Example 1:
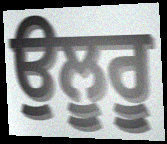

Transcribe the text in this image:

ਉਲੂਰੂ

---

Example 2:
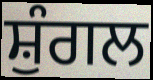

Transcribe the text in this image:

ਸ਼ੁੰਗਲ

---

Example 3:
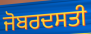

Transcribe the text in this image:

ਜੋਬਰਦਸਤੀ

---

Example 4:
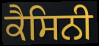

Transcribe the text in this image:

ਕੈਸਿਨੀ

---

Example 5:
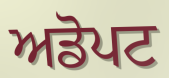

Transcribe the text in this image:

ਅਡੋਪਟ